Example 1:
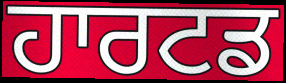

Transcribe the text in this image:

ਹਾਰਟਡ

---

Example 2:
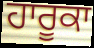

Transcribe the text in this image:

ਹਾਰੂਕਾ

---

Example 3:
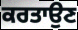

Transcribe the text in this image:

ਕਰਤਾਉਣ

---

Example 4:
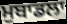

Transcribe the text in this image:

ਮੁਬਾਡਲਾ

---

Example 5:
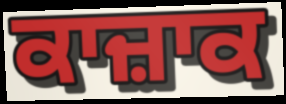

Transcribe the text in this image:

ਕਾਜ਼ਾਕ